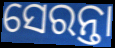
ସେରନ୍ତା